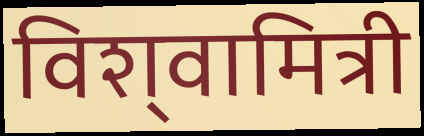
विश्वामित्री